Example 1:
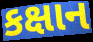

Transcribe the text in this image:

કક્ષાન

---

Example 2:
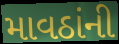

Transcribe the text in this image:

માવઠાંની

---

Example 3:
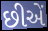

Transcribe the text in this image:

છીએં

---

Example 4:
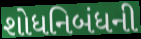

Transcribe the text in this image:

શોધનિબંધની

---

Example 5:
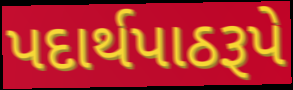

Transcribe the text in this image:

પદાર્થપાઠરૂપે